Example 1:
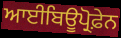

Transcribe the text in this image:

ਆਈਬਿਊਪ੍ਰੋਫ਼ੇਨ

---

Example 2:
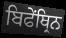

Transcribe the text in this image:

ਬਿਫੇਂਥ੍ਰਿਨ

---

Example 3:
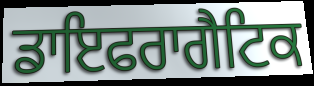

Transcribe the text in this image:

ਡਾਇਫਰਾਗੈਟਿਕ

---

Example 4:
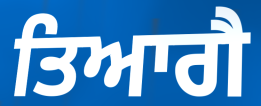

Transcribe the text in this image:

ਤਿਆਗੈ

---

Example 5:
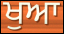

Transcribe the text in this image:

ਖੁਆ